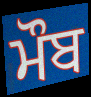
ਮੌਬ